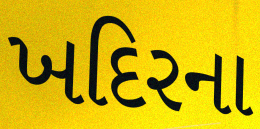
ખદિરના